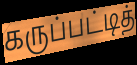
கருப்பட்டித்